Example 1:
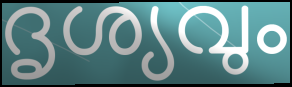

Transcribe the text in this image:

ദൃശ്യവും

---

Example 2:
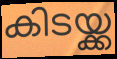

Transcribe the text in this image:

കിടയ്ക്ക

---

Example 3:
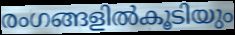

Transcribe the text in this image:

രംഗങ്ങളിൽകൂടിയും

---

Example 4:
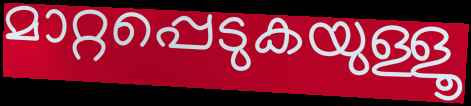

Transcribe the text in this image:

മാറ്റപ്പെടുകയുള്ളൂ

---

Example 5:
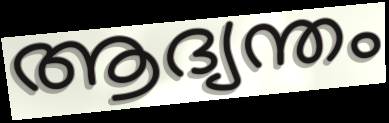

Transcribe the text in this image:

ആദ്യന്തം